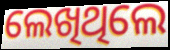
ଲେଖିଥିଲେ